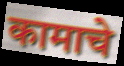
कामाचे